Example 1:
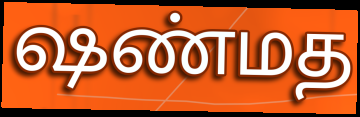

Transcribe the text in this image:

ஷண்மத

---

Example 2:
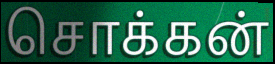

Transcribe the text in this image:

சொக்கன்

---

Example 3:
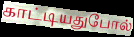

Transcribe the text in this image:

காட்டியதுபோல்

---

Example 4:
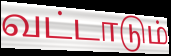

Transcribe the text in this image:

வட்டாடும்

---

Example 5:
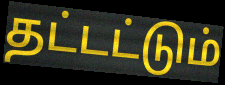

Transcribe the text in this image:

தட்டட்டும்